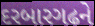
દરબારગઢને